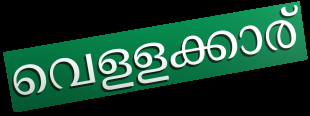
വെളളക്കാര്